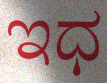
ಇಧ